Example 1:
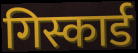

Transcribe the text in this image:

गिस्कार्ड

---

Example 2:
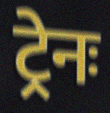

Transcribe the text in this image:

ट्रेनः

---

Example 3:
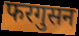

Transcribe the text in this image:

फरगुसन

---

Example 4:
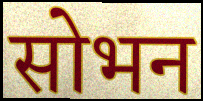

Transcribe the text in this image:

सोभन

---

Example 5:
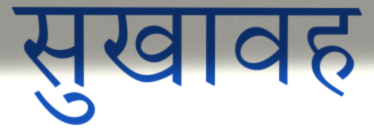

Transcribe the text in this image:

सुखावह